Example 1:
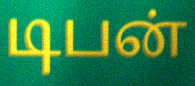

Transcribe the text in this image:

டிபன்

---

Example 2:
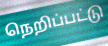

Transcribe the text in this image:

நெறிப்பட்டு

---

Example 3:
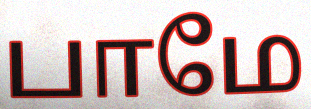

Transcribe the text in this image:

பாமே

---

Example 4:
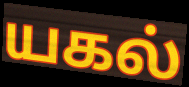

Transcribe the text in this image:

யகல்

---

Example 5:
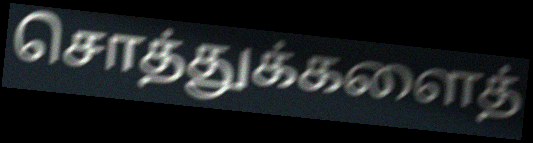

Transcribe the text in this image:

சொத்துக்களைத்